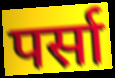
पर्सा